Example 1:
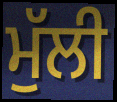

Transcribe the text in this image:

ਮੁੱਲੀ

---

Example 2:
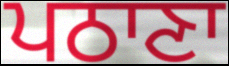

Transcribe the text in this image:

ਪਠਾਣਾ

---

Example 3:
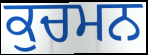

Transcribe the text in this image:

ਕੁਚਮਨ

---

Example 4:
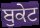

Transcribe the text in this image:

ਬੁਕੇਟ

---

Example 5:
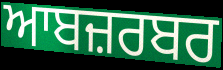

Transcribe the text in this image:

ਆਬਜ਼ਰਬਰ